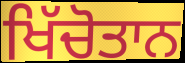
ਖਿੱਚੋਤਾਨ